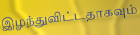
இழந்துவிட்டதாகவும்